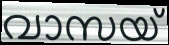
വാസയ്